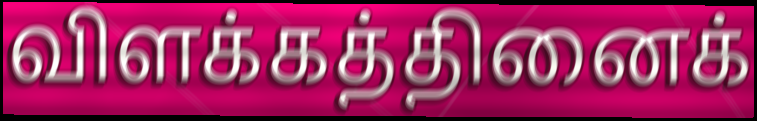
விளக்கத்தினைக்